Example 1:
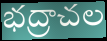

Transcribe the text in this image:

భద్రాచల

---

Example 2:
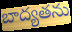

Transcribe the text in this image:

బాద్యతను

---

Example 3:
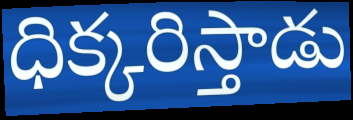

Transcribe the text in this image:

ధిక్కరిస్తాడు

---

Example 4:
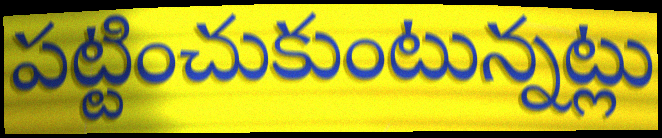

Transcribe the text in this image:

పట్టించుకుంటున్నట్లు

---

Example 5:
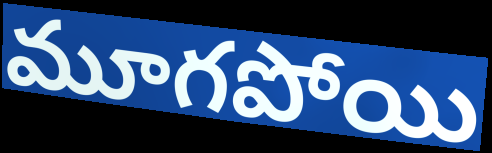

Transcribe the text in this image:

మూగపోయి